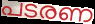
പടരണ